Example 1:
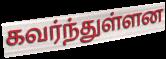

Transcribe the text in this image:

கவர்ந்துள்ளன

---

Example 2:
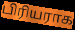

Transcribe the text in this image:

பிரியராக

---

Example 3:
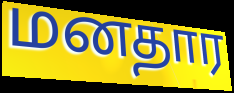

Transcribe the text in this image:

மனதார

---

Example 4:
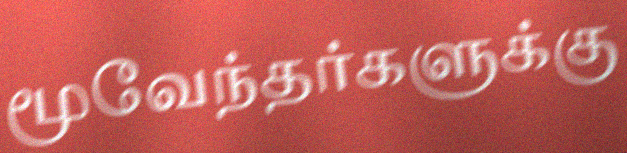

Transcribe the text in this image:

மூவேந்தர்களுக்கு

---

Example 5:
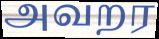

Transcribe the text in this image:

அவறர